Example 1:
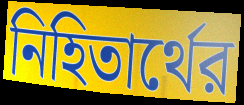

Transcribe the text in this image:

নিহিতার্থের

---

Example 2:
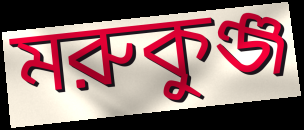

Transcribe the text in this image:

মরুকুঞ্জ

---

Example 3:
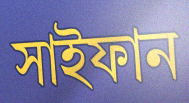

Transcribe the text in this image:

সাইফান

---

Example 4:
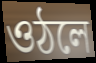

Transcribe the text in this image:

ওঠলে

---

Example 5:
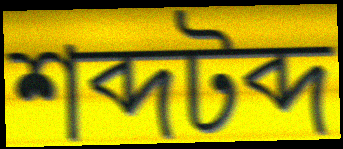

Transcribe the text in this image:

শব্দটব্দ